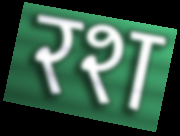
रश